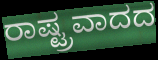
ರಾಷ್ಟ್ರವಾದದ